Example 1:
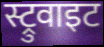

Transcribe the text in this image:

स्ट्रुवाइट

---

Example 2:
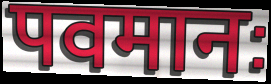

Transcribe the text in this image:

पवमानः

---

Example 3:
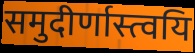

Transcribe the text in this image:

समुदीर्णास्त्वयि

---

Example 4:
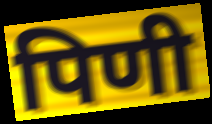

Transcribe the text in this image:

पिणी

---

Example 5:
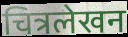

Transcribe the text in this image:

चित्रलेखन